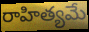
రాహిత్యమే